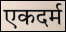
एकदर्म